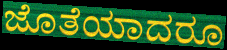
ಜೊತೆಯಾದರೂ